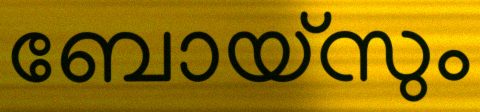
ബോയ്സും